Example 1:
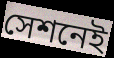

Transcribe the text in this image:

সেশনেই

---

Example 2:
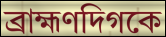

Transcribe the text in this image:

ব্রাহ্মণদিগকে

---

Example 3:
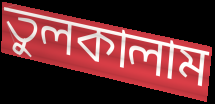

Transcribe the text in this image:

তুলকালাম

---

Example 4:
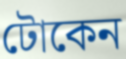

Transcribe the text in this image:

টোকেন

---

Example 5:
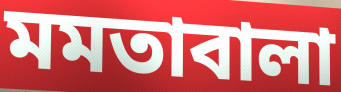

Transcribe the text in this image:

মমতাবালা